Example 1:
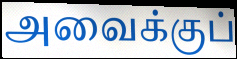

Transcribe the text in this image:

அவைக்குப்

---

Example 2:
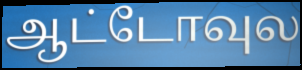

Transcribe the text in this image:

ஆட்டோவுல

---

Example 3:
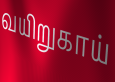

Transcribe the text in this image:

வயிறுகாய்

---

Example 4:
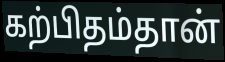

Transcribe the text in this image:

கற்பிதம்தான்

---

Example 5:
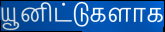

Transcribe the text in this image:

யூனிட்டுகளாக